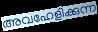
അവഹേളിക്കുന്ന